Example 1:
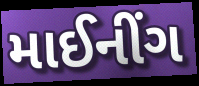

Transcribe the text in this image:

માઈનીંગ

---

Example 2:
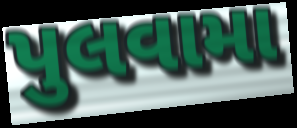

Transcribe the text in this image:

પુલવામા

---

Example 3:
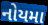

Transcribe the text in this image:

નોયમા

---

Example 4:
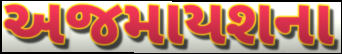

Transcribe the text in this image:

અજમાયશના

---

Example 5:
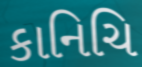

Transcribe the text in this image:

કાનિચિ